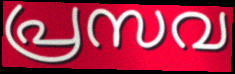
പ്രസവ